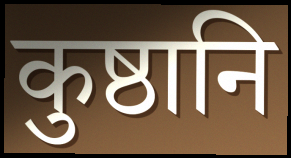
कुष्ठानि